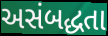
અસંબદ્ધતા